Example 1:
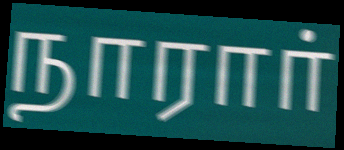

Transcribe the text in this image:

நாரார்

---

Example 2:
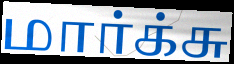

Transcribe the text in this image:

மார்க்சு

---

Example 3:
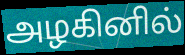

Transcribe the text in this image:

அழகினில்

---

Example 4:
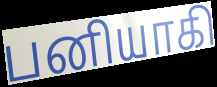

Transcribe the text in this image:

பனியாகி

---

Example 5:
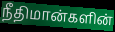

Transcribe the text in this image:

நீதிமான்களின்